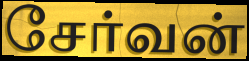
சேர்வன்